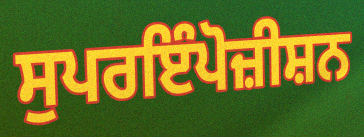
ਸੁਪਰਇੰਪੋਜ਼ੀਸ਼ਨ